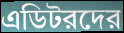
এডিটরদের